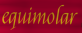
equimolar